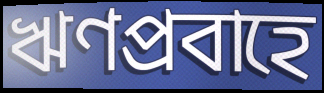
ঋণপ্রবাহে